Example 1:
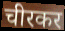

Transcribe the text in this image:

चीरकर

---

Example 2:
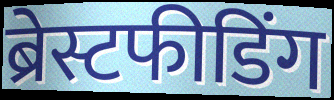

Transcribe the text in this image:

ब्रेस्टफीडिंग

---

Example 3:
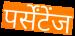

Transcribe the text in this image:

पर्सेंटेंज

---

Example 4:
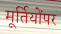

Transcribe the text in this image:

मूर्तियोंपर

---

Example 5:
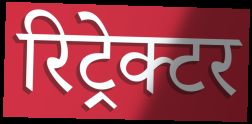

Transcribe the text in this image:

रिट्रेक्टर